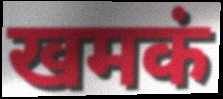
खमकं